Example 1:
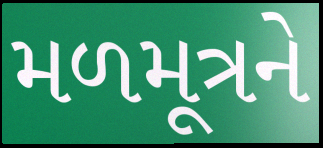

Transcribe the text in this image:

મળમૂત્રને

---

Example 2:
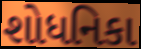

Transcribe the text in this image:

શોધનિકા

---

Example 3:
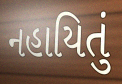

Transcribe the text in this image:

નહાયિતું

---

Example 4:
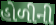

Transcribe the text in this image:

હોળીની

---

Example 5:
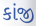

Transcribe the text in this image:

કાંજી